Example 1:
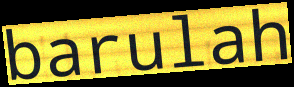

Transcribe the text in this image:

barulah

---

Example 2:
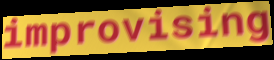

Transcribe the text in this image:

improvising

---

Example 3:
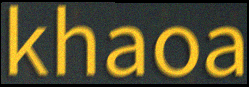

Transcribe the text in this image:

khaoa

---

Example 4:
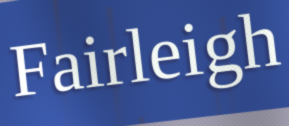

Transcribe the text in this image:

Fairleigh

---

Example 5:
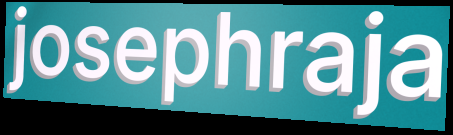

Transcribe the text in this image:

josephraja